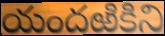
యందఱికిని